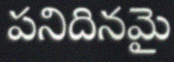
పనిదినమై